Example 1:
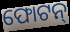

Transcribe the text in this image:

ଫୋଟନ୍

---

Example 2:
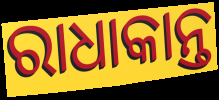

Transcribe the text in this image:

ରାଧାକାନ୍ତ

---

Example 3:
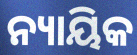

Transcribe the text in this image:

ନ୍ୟାୟିକ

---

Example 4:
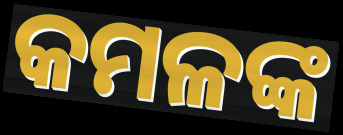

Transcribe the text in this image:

କମଳଙ୍କ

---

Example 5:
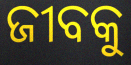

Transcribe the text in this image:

ଜୀବକୁ